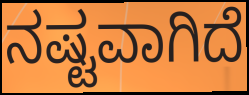
ನಷ್ಟವಾಗಿದೆ